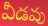
వీడవు